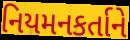
નિયમનકર્તાને